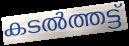
കടൽത്തട്ട്